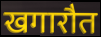
खगारौत